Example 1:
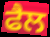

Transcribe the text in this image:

ਫੈਲ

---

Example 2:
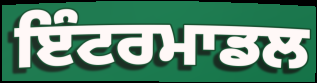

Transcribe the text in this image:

ਇੰਟਰਮਾਡਲ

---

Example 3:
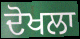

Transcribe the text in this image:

ਦੋਖਲਾ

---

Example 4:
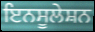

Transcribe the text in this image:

ਇਨਸੂਲੇਸ਼ਨ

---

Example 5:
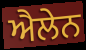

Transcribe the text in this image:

ਐਲੇਨ